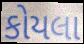
કોયલા